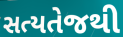
સત્યતેજથી